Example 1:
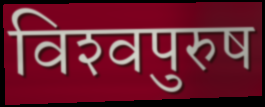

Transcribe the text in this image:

विश्वपुरुष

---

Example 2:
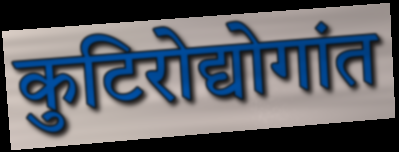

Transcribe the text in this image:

कुटिरोद्योगांत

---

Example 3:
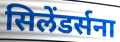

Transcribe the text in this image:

सिलेंडर्सना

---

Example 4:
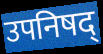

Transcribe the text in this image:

उपनिषद्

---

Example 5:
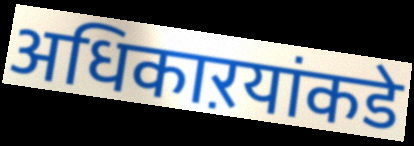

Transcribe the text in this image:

अधिकाऱयांकडे